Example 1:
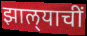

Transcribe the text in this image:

झाल्याचीं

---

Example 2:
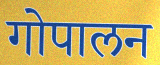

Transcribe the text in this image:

गोपालन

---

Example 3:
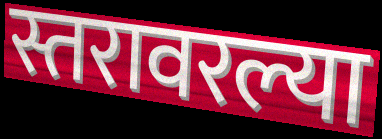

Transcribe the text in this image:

स्तरावरल्या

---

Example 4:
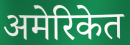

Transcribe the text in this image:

अमेरिकेत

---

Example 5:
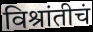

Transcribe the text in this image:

विश्रांतीचं